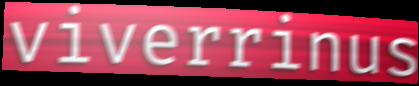
viverrinus